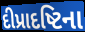
દીપ્રાદષ્ટિના